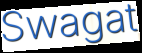
Swagat